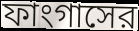
ফাংগাসের